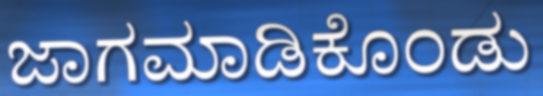
ಜಾಗಮಾಡಿಕೊಂಡು